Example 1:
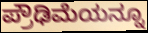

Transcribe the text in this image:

ಪ್ರೌಢಿಮೆಯನ್ನೂ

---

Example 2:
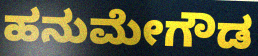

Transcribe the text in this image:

ಹನುಮೇಗೌಡ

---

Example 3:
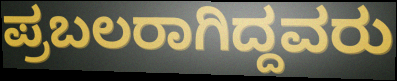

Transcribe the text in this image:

ಪ್ರಬಲರಾಗಿದ್ದವರು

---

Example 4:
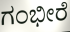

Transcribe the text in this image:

ಗಂಭೀರೆ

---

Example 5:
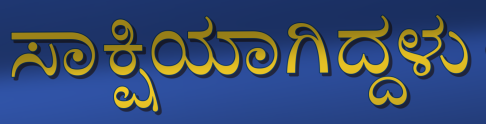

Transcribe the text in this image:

ಸಾಕ್ಷಿಯಾಗಿದ್ದಳು